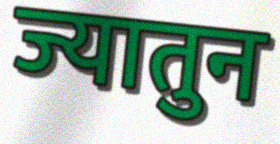
ज्यातुन